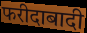
फरीदाबादी